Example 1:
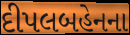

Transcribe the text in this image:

દીપલબહેનના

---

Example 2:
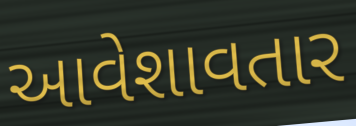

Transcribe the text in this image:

આવેશાવતાર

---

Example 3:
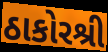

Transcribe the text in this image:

ઠાકોરશ્રી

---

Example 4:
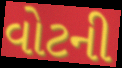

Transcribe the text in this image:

વોટની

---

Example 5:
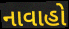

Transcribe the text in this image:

નાવાહો